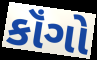
કૉંગો